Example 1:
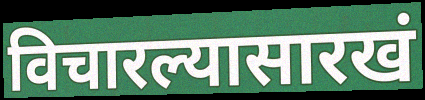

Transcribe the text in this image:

विचारल्यासारखं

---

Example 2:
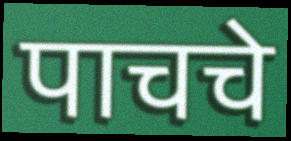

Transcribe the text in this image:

पाचचे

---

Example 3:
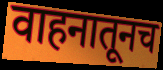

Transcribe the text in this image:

वाहनातूनच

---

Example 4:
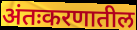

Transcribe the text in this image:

अंतःकरणातील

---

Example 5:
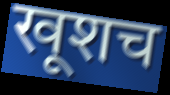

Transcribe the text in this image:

खूशच